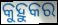
କୁହୁକର